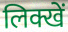
लिक्खें